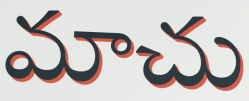
మాచు